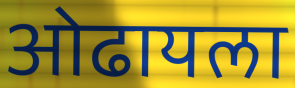
ओढायला